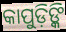
କାପୁଡ଼ିଙ୍କି